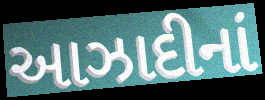
આઝાદીનાં